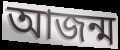
আজন্ম